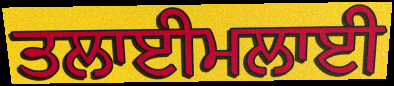
ਤਲਾਈਮਲਾਈ